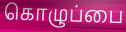
கொழுப்பை